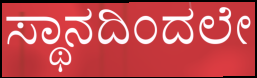
ಸ್ಥಾನದಿಂದಲೇ